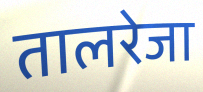
तालरेजा